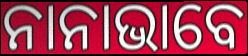
ନାନାଭାବେ